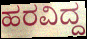
ಹರವಿದ್ದ